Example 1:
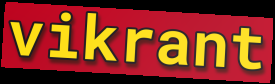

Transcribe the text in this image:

vikrant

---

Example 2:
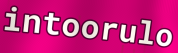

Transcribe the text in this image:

intoorulo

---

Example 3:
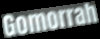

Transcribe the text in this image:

Gomorrah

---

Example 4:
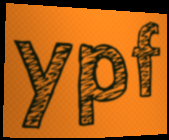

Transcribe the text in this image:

ypf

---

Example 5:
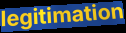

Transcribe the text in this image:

legitimation